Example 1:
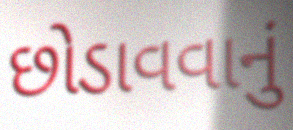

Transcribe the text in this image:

છોડાવવાનું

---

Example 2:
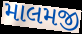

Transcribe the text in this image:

માલમજી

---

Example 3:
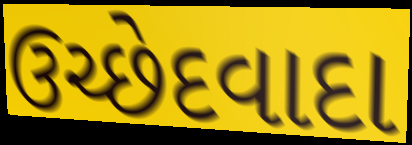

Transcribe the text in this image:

ઉચ્છેદવાદા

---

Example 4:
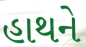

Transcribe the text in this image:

હાથને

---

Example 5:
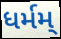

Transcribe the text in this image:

ધર્મમ્